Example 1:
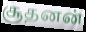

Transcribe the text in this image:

சூதனன்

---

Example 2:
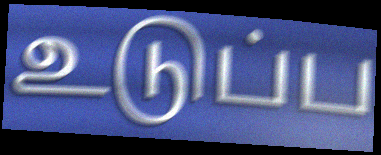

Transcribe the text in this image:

உடுப்ப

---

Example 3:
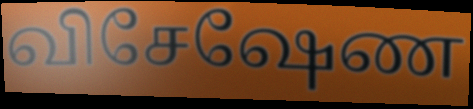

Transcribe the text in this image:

விசேஷேண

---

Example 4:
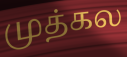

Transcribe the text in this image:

முத்கல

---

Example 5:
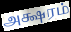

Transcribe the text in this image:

அக்ஷரம்